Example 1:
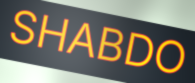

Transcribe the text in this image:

SHABDO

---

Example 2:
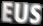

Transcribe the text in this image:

EUS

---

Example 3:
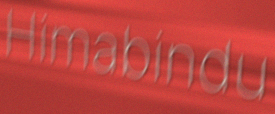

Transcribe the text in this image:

Himabindu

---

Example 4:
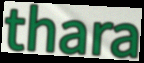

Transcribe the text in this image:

thara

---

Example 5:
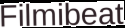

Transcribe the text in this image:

Filmibeat